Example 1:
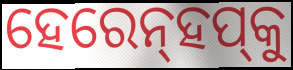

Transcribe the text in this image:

ହେରେନ୍‌ହପ୍‌କୁ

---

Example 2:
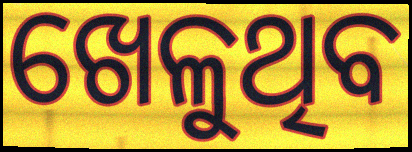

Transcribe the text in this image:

ଖେଳୁଥିବ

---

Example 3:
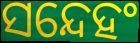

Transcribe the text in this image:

ସନ୍ଦେହଂ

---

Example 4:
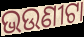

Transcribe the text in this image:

ଭଉଣୀଟା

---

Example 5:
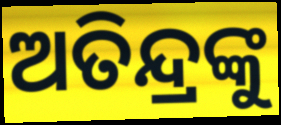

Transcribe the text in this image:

ଅତିନ୍ଦ୍ରଙ୍କୁ